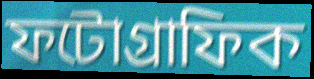
ফটোগ্রাফিক